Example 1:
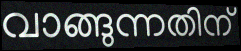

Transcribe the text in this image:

വാങ്ങുന്നതിന്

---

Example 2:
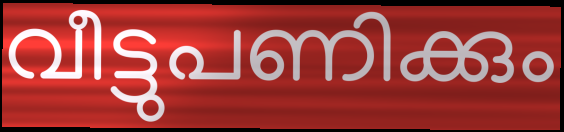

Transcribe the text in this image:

വീട്ടുപണിക്കും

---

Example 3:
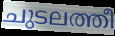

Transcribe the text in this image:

ചുടലത്തീ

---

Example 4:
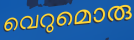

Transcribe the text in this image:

വെറുമൊരു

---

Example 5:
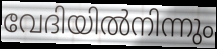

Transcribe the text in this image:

വേദിയിൽനിന്നും